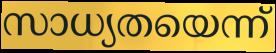
സാധ്യതയെന്ന്